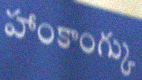
హాంకాంగ్కు